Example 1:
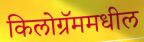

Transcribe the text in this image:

किलोग्रॅममधील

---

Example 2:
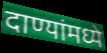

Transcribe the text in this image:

दाण्यांमध्ये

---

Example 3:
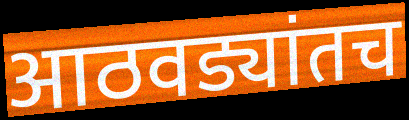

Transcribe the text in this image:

आठवड्यांतच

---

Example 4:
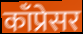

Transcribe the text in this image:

काँप्रेसर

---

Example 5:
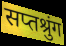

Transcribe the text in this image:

सप्तश्रुंग